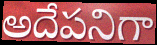
అదేపనిగా